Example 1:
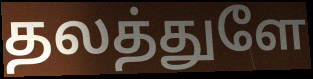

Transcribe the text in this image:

தலத்துளே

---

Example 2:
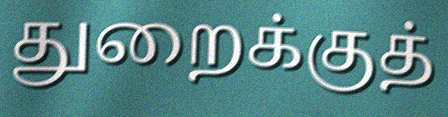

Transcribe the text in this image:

துறைக்குத்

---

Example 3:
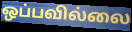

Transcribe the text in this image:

ஒப்பவில்லை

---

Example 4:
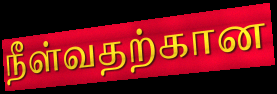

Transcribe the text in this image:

நீள்வதற்கான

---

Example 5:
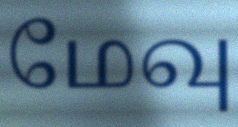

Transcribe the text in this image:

மேவு